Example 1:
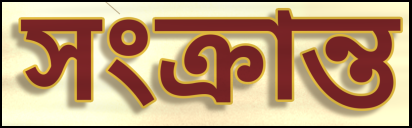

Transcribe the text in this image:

সংক্রান্ত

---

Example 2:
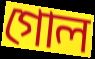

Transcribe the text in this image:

গোল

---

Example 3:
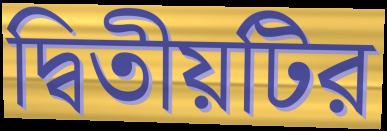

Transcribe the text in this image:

দ্বিতীয়টির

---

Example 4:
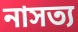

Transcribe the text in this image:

নাসত্য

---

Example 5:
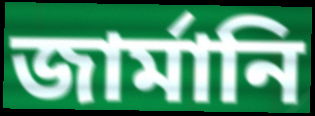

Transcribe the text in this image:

জার্মানি